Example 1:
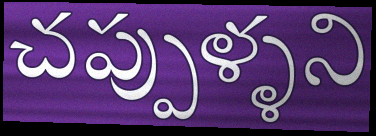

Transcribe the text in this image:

చప్పుళ్ళని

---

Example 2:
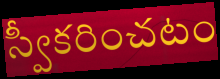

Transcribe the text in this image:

స్వీకరించటం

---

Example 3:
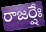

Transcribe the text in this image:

రాజర్షేః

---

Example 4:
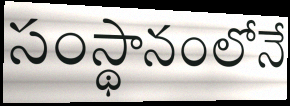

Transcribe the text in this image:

సంస్థానంలోనే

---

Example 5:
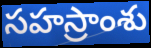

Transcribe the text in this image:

సహస్రాంశు